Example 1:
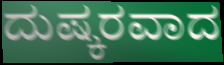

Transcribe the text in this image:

ದುಷ್ಕರವಾದ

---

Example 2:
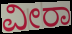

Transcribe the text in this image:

ವೀರಾ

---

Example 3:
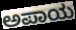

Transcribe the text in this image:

ಅಪಾಯ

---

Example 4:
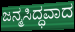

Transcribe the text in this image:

ಜನ್ಮಸಿದ್ಧವಾದ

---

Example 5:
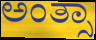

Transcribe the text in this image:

ಅಂತ್ಸಾ